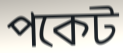
পকেট